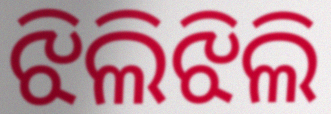
ଝିଲିଝିଲି